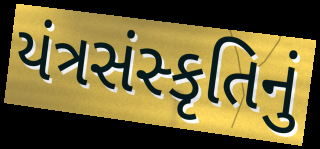
યંત્રસંસ્કૃતિનું